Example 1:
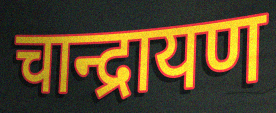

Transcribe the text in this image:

चान्द्रायण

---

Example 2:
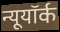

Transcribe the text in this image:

न्यूयॉर्क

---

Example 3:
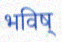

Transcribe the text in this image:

भविष्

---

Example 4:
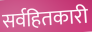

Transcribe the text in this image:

सर्वहितकारी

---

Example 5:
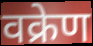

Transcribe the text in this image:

वक्रेण